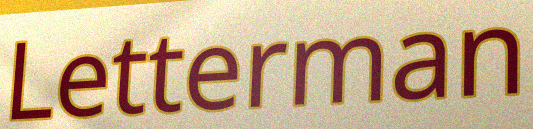
Letterman